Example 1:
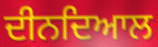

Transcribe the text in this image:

ਦੀਨਦਿਆਲ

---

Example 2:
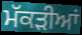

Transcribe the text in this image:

ਮੱਕੜੀਆਂ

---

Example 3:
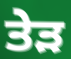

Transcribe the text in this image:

ਤੇੜ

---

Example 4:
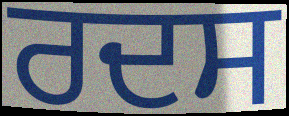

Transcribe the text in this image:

ਰਦਸ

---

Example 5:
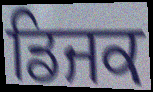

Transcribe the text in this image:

ਡਿਜਕ